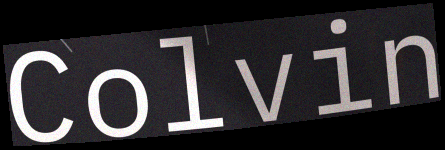
Colvin